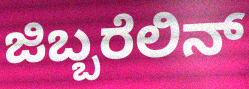
ಜಿಬ್ಬರೆಲಿನ್